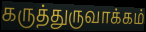
கருத்துருவாக்கம்